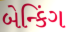
બેન્કિંગ